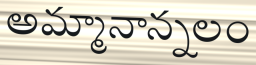
అమ్మానాన్నలం